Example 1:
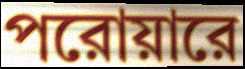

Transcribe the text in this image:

পরোয়ারে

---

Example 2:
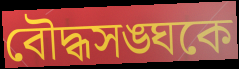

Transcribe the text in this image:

বৌদ্ধসঙ্ঘকে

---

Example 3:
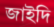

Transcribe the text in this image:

জাইদি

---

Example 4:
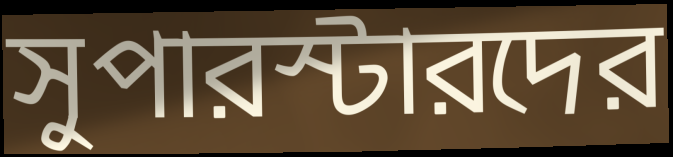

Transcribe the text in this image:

সুপারস্টারদের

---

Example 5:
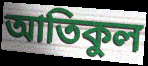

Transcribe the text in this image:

আতিকুল